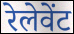
रेलेवेंट